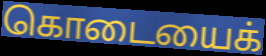
கொடையைக்